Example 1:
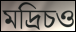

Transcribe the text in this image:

মদ্রিচও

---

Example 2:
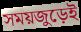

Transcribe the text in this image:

সময়জুড়েই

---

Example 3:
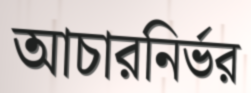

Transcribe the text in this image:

আচারনির্ভর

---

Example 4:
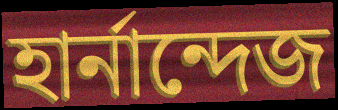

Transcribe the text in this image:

হার্নান্দেজ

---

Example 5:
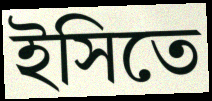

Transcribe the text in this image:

ইসিতে